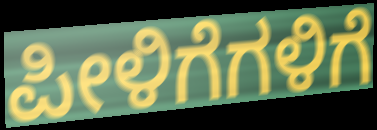
ಪೀಳಿಗೆಗಳಿಗೆ